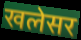
खलेसर